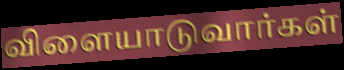
விளையாடுவார்கள்